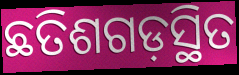
ଛତିଶଗଡ଼ସ୍ଥିତ